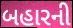
બહારની